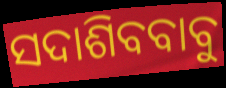
ସଦାଶିବବାବୁ